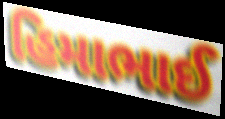
હિમાભાઈ